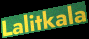
Lalitkala